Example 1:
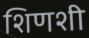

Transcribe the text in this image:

शिणशी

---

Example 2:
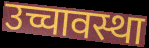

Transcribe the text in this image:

उच्चावस्था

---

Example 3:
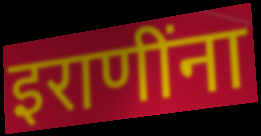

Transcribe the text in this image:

इराणींना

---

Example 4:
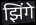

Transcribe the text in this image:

झिंगे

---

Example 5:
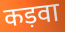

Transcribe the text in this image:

कड़वा